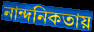
নান্দনিকতায়